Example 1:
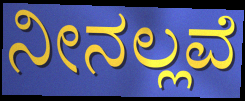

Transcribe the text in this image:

ನೀನಲ್ಲವೆ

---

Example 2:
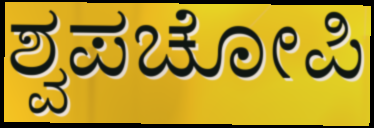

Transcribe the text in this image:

ಶ್ವಪಚೋಪಿ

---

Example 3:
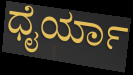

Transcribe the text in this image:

ಧೈರ್ಯಾ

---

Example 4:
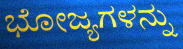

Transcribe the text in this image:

ಭೋಜ್ಯಗಳನ್ನು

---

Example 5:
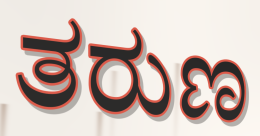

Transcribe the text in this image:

ತರುಣ